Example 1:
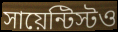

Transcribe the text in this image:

সায়েন্টিস্টও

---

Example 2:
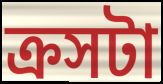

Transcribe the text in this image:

ক্রসটা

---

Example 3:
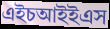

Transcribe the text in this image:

এইচআইইএস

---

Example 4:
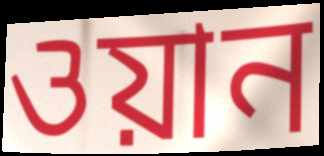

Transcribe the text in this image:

ওয়ান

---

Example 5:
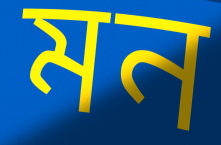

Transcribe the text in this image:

মন